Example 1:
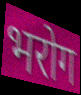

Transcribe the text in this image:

भरोग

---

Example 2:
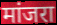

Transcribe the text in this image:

मांजरा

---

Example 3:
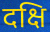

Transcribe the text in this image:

दक्षि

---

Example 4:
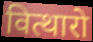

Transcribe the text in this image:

वित्थारो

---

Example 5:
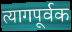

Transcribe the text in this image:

त्यागपूर्वक